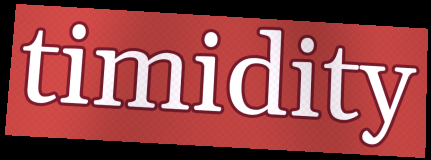
timidity